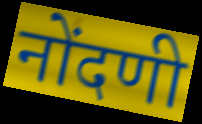
नोंदणी